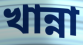
খান্না